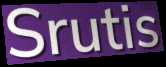
Srutis